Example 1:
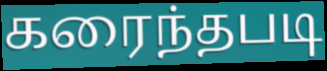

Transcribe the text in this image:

கரைந்தபடி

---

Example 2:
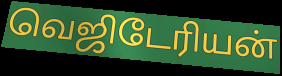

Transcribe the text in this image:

வெஜிடேரியன்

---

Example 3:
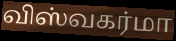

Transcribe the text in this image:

விஸ்வகர்மா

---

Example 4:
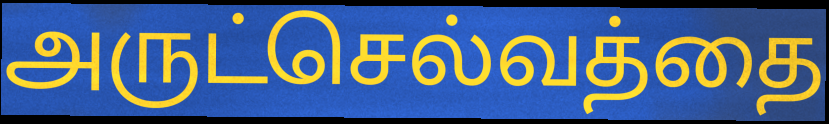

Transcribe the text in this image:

அருட்செல்வத்தை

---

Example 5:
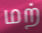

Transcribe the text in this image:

மற்